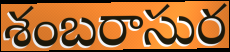
శంబరాసుర